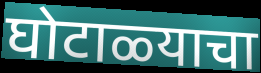
घोटाळ्याचा